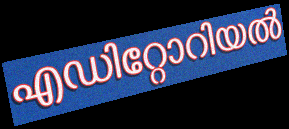
എഡിറ്റോറിയൽ